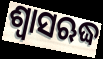
ଶ୍ୱାସଋଦ୍ଧ